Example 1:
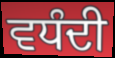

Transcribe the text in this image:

ਵਧੰਦੀ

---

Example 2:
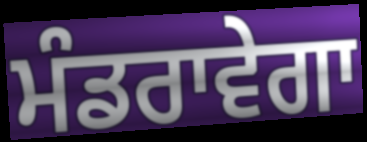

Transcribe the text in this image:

ਮੰਡਰਾਵੇਗਾ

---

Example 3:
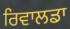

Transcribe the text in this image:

ਰਿਵਾਲਡਾ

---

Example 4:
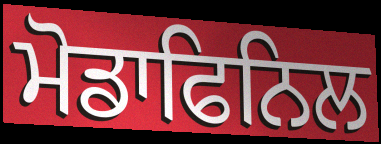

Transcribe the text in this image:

ਮੋਡਾਫਿਨਿਲ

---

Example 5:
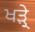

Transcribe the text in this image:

ਖੜ੍ਰੇ